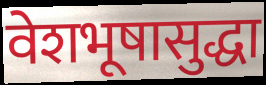
वेशभूषासुद्धा